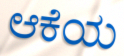
ಆಕೆಯ